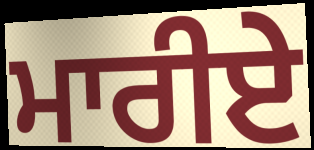
ਮਾਰੀਏ